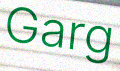
Garg